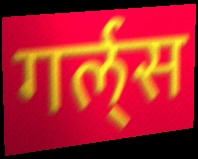
गर्ल्स